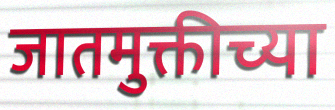
जातमुक्तीच्या